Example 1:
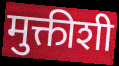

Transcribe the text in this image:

मुक्तीशी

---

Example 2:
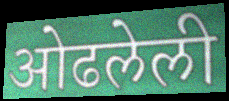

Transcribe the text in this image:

ओढलेली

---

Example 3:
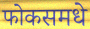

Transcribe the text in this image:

फोकसमधे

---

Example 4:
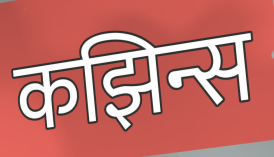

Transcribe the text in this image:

कझिन्स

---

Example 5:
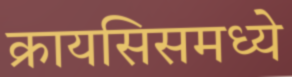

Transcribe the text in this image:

क्रायसिसमध्ये